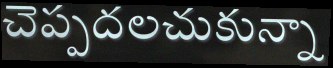
చెప్పదలచుకున్నా